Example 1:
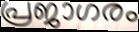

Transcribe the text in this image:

പ്രജാഗരം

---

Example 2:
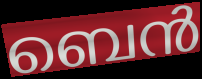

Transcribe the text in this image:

ബെൻ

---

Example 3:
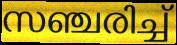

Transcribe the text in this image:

സഞ്ചരിച്ച്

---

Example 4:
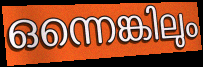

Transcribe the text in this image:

ഒന്നെങ്കിലും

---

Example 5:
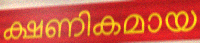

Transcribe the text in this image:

ക്ഷണികമായ